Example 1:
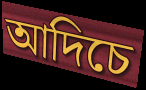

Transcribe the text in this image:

আদিচে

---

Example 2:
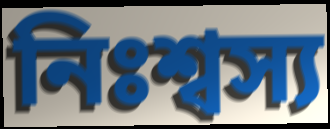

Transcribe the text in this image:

নিঃশ্বস্য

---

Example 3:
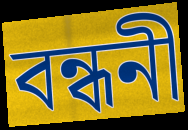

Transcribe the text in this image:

বন্ধনী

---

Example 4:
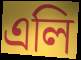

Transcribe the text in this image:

এলি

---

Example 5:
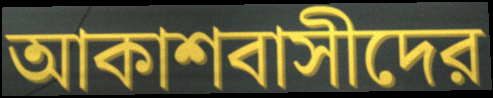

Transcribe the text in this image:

আকাশবাসীদের